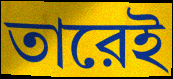
তারেই